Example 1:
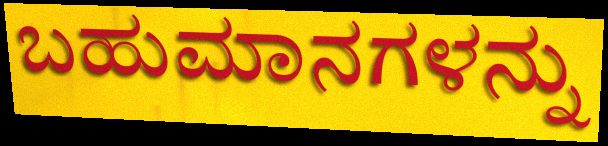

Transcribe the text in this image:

ಬಹುಮಾನಗಳನ್ನು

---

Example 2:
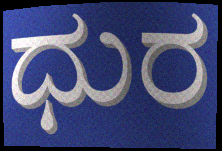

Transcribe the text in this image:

ಧುರ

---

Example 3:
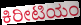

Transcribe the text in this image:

ಕಿರೀಟಿಯಂ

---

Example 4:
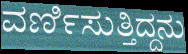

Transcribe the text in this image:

ವರ್ಣಿಸುತ್ತಿದ್ದನು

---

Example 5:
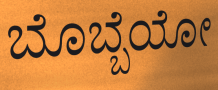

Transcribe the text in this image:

ಬೊಬ್ಬೆಯೋ